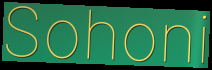
Sohoni